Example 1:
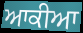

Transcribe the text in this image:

ਆਕੀਆ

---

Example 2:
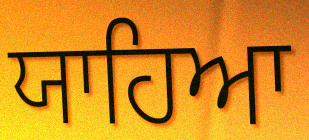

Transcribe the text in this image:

ਯਾਹਿਆ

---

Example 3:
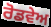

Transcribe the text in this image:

ਰੋਡਵੇਅ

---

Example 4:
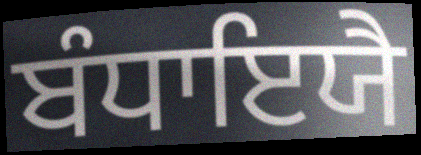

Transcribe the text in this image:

ਬੰਧਾਇਯੈ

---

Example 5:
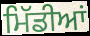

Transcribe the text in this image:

ਮਿੱਡੀਆਂ